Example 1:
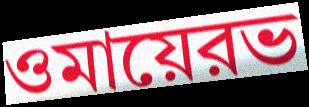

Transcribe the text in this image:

ওমায়েরভ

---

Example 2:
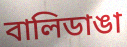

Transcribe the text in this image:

বালিডাঙা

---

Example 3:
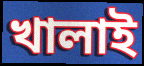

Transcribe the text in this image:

খালাই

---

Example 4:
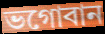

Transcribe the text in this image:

ভগোবান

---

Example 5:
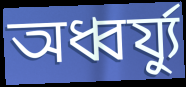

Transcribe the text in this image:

অধ্বর্য্যু